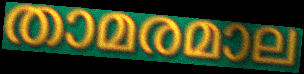
താമരമാല